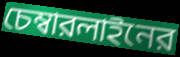
চেম্বারলাইনের